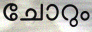
ചോറും